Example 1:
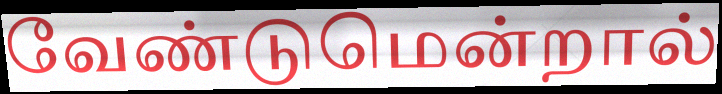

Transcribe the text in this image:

வேண்டுமென்றால்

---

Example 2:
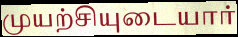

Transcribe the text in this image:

முயற்சியுடையார்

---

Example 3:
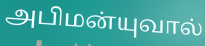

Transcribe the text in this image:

அபிமன்யுவால்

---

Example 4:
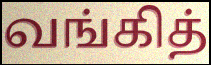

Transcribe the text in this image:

வங்கித்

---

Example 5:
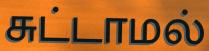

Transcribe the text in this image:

சுட்டாமல்